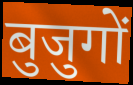
बुजुगों